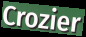
Crozier